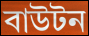
বাউটন